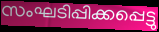
സംഘടിപ്പിക്കപ്പെട്ടു